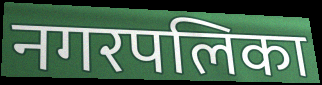
नगरपलिका